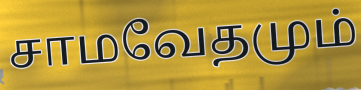
சாமவேதமும்